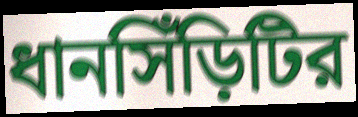
ধানসিঁড়িটির